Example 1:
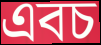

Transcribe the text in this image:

এবচ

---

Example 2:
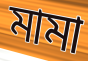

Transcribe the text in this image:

মামা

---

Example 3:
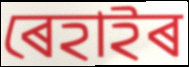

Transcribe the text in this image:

ৰেহাইৰ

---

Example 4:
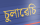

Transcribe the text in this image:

চুলাৱেচি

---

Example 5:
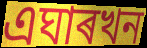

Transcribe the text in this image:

এঘাৰখন